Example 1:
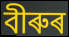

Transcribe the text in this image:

বীৰুৰ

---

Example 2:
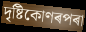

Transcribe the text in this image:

দৃষ্টিকোণৰপৰা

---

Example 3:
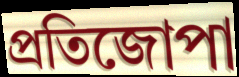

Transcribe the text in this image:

প্ৰতিজোপা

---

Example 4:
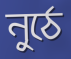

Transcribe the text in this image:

নুঠে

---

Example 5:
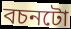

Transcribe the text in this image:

বচনটো